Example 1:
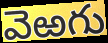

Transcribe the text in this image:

వెఱగు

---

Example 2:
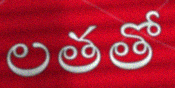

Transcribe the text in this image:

లతతో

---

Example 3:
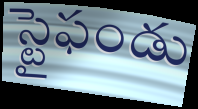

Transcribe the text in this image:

స్టైఫండు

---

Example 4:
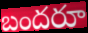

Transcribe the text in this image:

బందరూ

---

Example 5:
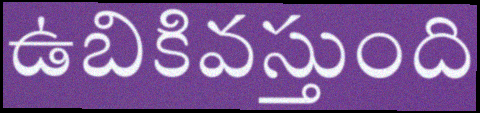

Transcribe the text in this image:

ఉబికివస్తుంది